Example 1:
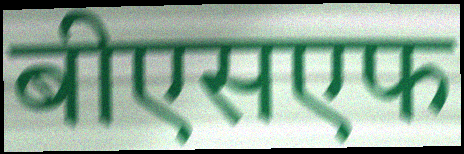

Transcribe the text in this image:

बीएसएफ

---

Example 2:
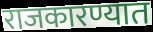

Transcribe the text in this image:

राजकारण्यात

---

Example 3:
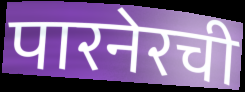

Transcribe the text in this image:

पारनेरची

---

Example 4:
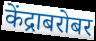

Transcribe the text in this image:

केंद्राबरोबर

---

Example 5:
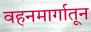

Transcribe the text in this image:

वहनमार्गातून